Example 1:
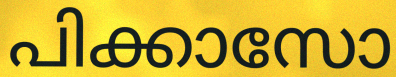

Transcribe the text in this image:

പിക്കാസോ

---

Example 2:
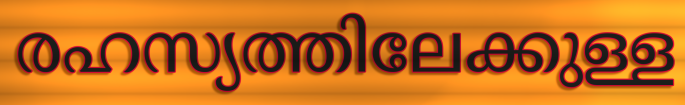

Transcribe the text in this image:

രഹസ്യത്തിലേക്കുള്ള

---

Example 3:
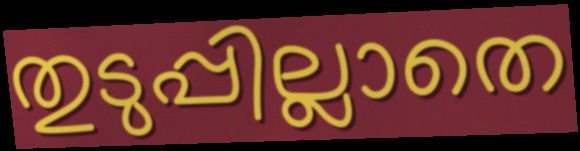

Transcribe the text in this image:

തുടുപ്പില്ലാതെ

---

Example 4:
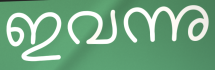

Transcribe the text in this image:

ഇവന്നു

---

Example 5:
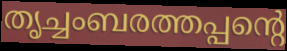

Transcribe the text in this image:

തൃച്ചംബരത്തപ്പന്റെ